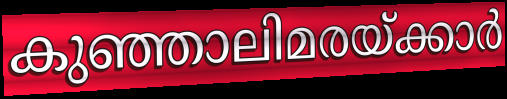
കുഞ്ഞാലിമരയ്ക്കാർ